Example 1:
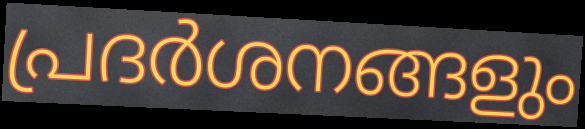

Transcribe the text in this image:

പ്രദർശനങ്ങളും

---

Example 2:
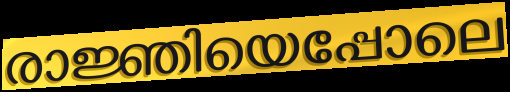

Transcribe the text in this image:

രാജ്ഞിയെപ്പോലെ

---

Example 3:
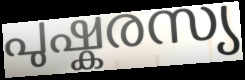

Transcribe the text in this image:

പുഷ്കരസ്യ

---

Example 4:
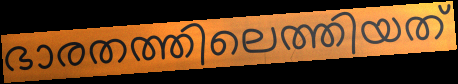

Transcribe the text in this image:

ഭാരതത്തിലെത്തിയത്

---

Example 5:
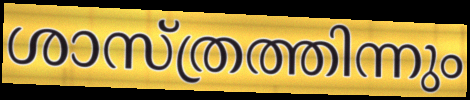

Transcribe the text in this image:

ശാസ്ത്രത്തിന്നും